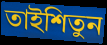
তাইশিতুন